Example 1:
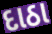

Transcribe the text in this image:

દાઠા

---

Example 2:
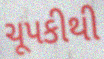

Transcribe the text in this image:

ચૂપકીથી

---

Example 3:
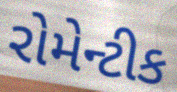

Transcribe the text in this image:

રોમેન્ટીક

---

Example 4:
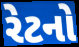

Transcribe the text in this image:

રેટનો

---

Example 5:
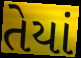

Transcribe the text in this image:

તેયાં